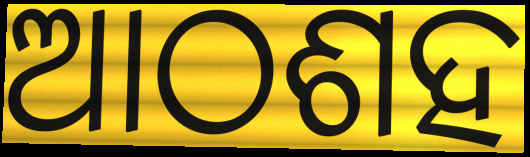
ଆଠଶହ